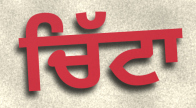
ਚਿੱਟਾ